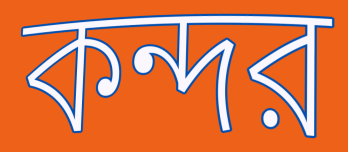
কন্দর